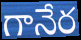
గానేర